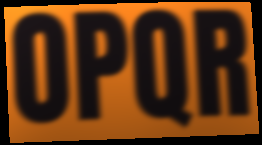
OPQR